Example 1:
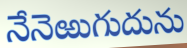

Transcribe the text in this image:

నేనెఱుగుదును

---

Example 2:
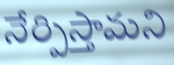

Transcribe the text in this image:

నేర్పిస్తామని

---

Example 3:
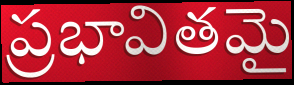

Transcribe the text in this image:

ప్రభావితమై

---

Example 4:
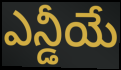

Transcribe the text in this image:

ఎన్డీయే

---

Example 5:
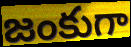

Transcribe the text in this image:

జంకుగా